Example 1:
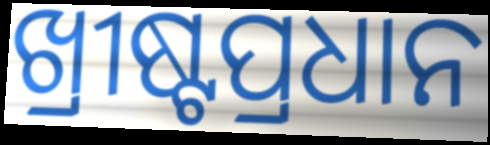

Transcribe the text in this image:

ଖ୍ରୀଷ୍ଟପ୍ରଧାନ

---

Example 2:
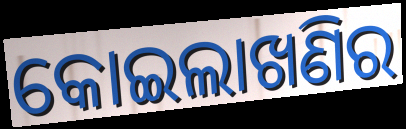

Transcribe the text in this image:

କୋଇଲାଖଣିର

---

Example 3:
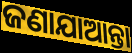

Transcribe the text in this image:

ଜଣାଯାଆନ୍ତା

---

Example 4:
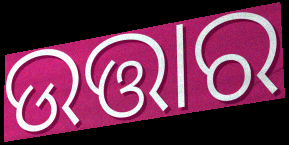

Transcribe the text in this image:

ଉତ୍ତାର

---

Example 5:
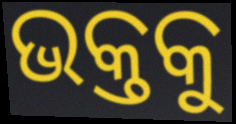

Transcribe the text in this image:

ଭକ୍ତକୁ